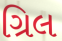
ગ્રિલ